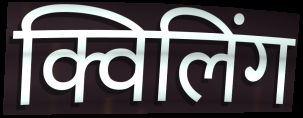
क्विलिंग